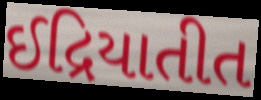
ઈદ્રિયાતીત